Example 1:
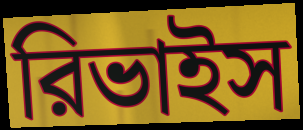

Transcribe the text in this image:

রিভাইস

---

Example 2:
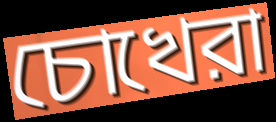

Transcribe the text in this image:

চোখেরা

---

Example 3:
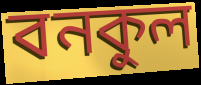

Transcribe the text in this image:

বনকুল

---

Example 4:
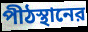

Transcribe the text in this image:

পীঠস্থানের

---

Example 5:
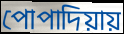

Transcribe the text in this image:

পোপাদিয়ায়